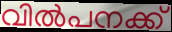
വിൽപനക്ക്